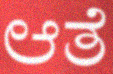
ಆತೆ